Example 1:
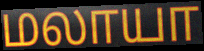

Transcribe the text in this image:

மலாயா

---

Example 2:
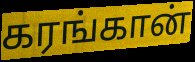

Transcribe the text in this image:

கரங்கான்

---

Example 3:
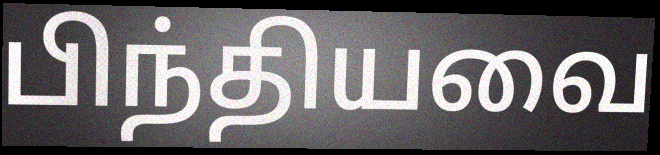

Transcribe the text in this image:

பிந்தியவை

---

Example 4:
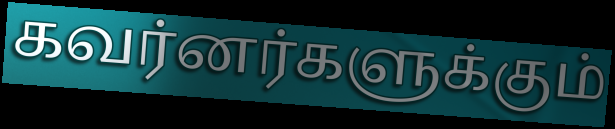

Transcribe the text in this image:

கவர்னர்களுக்கும்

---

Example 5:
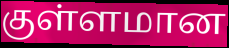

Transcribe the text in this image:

குள்ளமான